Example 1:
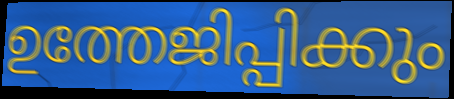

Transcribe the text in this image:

ഉത്തേജിപ്പിക്കും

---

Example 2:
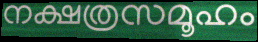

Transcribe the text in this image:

നക്ഷത്രസമൂഹം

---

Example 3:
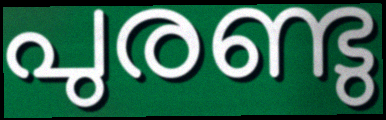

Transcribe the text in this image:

പുരണ്ടു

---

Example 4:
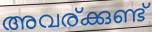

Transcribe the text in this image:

അവര്ക്കുണ്ട്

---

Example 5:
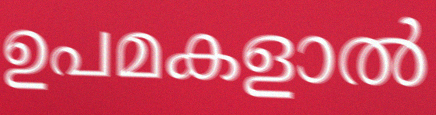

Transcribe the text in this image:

ഉപമകളാൽ